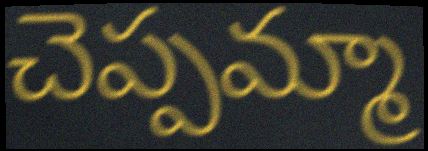
చెప్పమ్మా